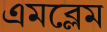
এমব্লেম